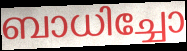
ബാധിച്ചോ